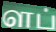
ளப்